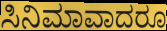
ಸಿನಿಮಾವಾದರೂ